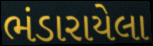
ભંડારાયેલા